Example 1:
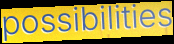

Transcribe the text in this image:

possibilities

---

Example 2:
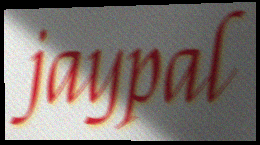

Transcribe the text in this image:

jaypal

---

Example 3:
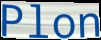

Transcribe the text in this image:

Plon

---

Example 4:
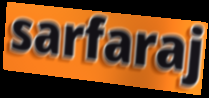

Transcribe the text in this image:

sarfaraj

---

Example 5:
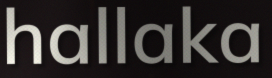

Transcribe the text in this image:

hallaka